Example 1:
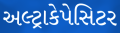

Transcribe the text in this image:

અલ્ટ્રાકેપેસિટર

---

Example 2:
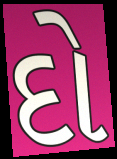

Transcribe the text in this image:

દો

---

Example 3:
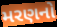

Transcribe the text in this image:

મરણનો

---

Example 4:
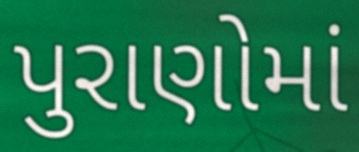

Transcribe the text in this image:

પુરાણોમાં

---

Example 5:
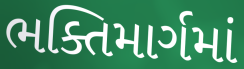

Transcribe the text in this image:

ભક્તિમાર્ગમાં